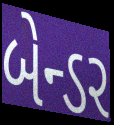
બેન્ડર